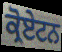
ਕ੍ਰੋਏਟਨ